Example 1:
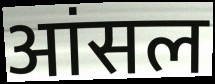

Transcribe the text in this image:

आंसल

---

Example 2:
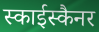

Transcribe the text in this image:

स्काईस्कैनर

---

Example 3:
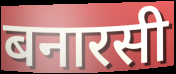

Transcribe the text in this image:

बनारसी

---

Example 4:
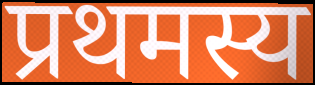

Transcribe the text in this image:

प्रथमस्य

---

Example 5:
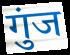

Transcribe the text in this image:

गुंज